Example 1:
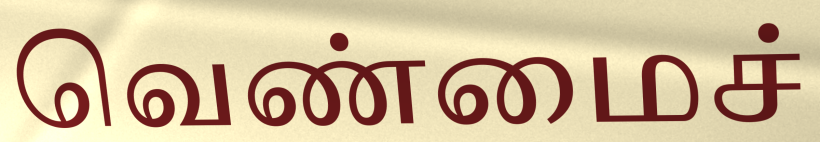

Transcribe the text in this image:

வெண்மைச்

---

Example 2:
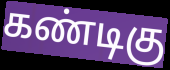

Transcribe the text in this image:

கண்டிகு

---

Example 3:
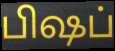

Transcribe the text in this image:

பிஷப்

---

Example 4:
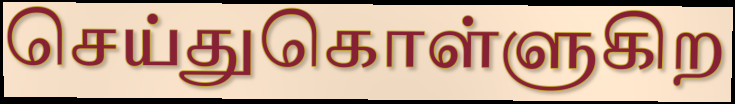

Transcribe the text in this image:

செய்துகொள்ளுகிற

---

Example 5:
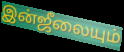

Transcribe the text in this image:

இன்ஜீலையும்